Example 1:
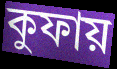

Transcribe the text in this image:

কুফায়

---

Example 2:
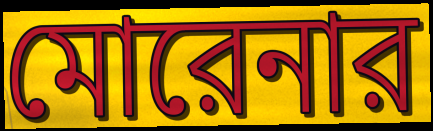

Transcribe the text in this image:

মোরেনার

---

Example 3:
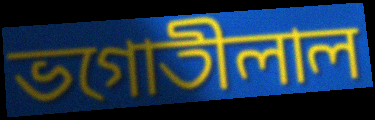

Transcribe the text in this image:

ভগোতীলাল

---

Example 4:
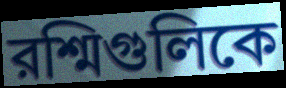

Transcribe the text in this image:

রশ্মিগুলিকে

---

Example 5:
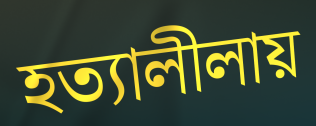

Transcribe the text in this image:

হত্যালীলায়